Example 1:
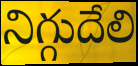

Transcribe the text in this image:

నిగ్గుదేలి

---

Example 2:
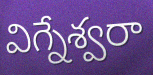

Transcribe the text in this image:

విగ్నేశ్వరా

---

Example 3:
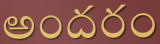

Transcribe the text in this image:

అందరం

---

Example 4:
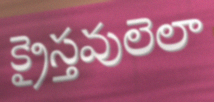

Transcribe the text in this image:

క్రైస్తవులెలా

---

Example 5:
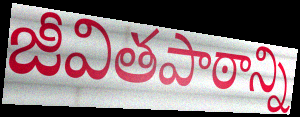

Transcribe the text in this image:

జీవితపాఠాన్ని